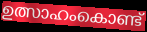
ഉത്സാഹംകൊണ്ട്